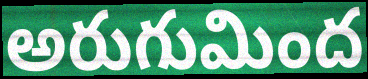
అరుగుమింద